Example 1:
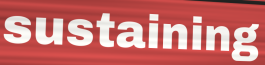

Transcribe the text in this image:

sustaining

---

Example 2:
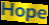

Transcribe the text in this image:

Hope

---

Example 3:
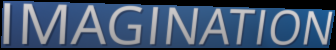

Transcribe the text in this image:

IMAGINATION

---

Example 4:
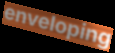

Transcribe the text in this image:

enveloping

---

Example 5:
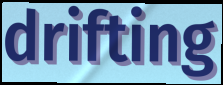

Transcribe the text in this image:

drifting